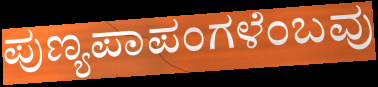
ಪುಣ್ಯಪಾಪಂಗಳೆಂಬವು